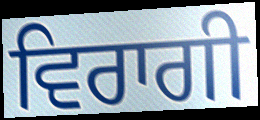
ਵਿਰਾਗੀ